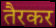
तैरकर